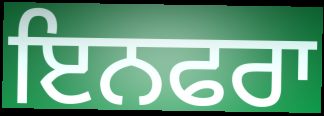
ਇਨਫਰਾ